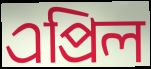
এপ্ৰিল